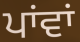
ਪਾਂਵਾਂ